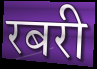
रबरी